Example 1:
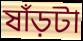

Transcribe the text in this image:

ষাঁড়টা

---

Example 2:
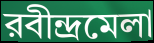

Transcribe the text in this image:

রবীন্দ্রমেলা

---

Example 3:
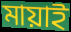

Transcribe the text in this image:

মায়াই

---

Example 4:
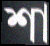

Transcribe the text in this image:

শা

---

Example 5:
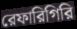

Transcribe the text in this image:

রেফারিগিরি